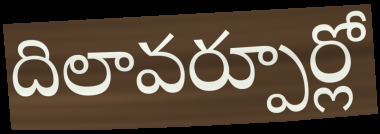
దిలావర్పూర్లో